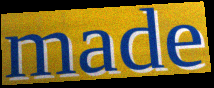
made